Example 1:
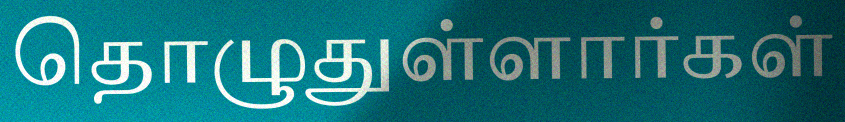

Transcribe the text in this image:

தொழுதுள்ளார்கள்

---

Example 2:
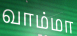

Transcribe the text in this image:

வாம்மா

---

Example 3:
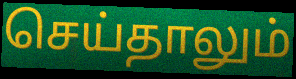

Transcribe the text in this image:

செய்தாலும்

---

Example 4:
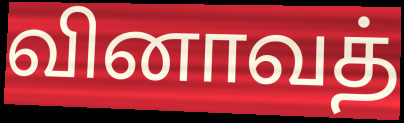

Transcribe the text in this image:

வினாவத்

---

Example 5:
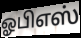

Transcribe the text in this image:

ஓபிஎஸ்